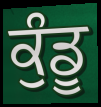
ਕੁੰਡੂ